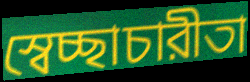
স্বেচ্ছাচারীতা